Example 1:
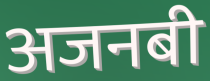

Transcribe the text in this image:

अजनबी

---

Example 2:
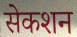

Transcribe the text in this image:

सेकशन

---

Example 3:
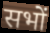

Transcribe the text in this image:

सभों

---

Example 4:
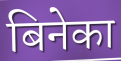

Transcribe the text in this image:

बिनेका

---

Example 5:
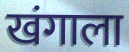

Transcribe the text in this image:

खंगाला